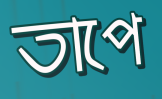
তাপে